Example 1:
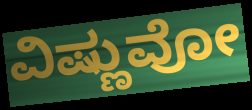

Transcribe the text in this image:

ವಿಷ್ಣುವೋ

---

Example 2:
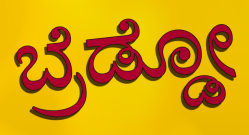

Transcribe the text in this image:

ಬ್ರೆಡ್ಡೋ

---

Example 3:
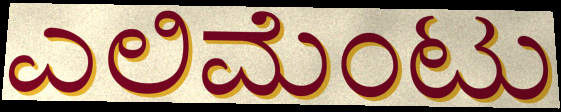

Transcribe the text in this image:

ಎಲಿಮೆಂಟು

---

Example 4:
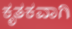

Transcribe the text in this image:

ಕೃತಕವಾಗಿ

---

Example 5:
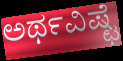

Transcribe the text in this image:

ಅರ್ಥವಿಷ್ಟೆ